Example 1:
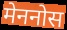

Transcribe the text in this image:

मेननोस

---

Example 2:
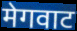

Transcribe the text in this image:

मेगवाट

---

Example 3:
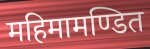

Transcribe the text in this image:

महिमामण्डित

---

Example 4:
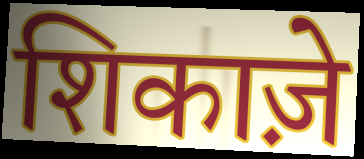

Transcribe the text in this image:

शिकाज़े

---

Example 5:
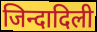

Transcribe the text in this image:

जिन्दादिली